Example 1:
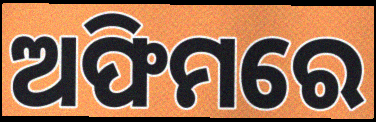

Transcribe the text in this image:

ଅଫିମରେ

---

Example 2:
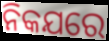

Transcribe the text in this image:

ନିକଯରେ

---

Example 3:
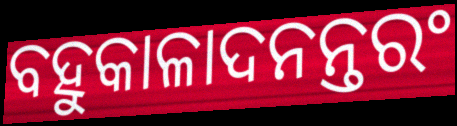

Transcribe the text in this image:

ବହୁକାଳାଦନନ୍ତରଂ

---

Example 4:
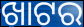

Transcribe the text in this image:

ଖାଟର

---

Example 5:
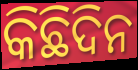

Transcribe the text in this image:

କିଛିଦିନ